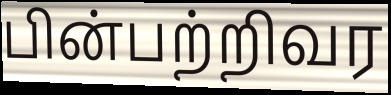
பின்பற்றிவர